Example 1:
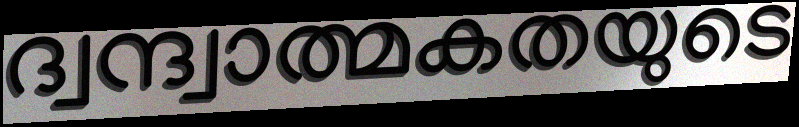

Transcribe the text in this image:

ദ്വന്ദ്വാത്മകതയുടെ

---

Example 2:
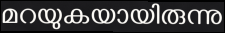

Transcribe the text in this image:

മറയുകയായിരുന്നു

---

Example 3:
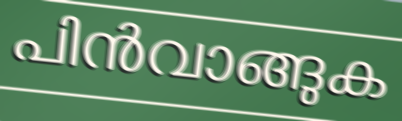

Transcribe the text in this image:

പിൻവാങ്ങുക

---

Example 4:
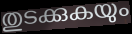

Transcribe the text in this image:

തുടക്കുകയും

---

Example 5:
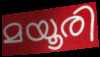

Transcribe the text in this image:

മയൂരി